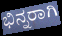
ಭಿನ್ನರಾಗಿ